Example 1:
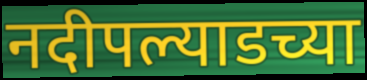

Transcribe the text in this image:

नदीपल्याडच्या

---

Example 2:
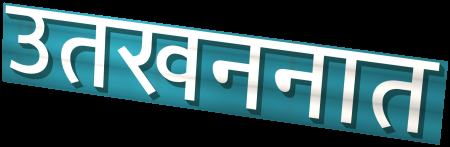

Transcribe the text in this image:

उतखननात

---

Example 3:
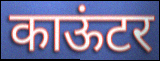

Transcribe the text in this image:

काऊंटर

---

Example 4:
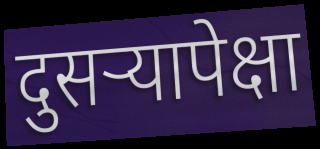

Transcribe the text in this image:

दुसऱ्यापेक्षा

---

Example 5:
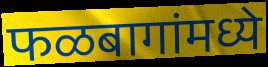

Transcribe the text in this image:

फळबागांमध्ये